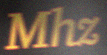
Mhz